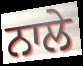
ਨਾਲੇ